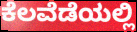
ಕೆಲವೆಡೆಯಲ್ಲಿ